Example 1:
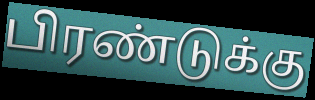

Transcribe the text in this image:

பிரண்டுக்கு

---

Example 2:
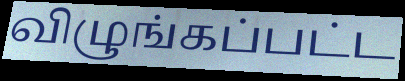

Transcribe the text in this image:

விழுங்கப்பட்ட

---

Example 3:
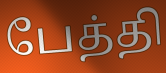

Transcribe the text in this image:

பேத்தி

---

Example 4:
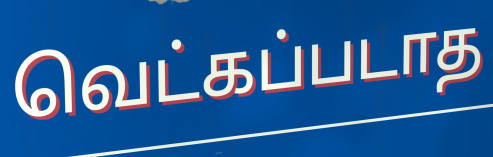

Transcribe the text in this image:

வெட்கப்படாத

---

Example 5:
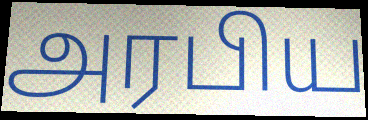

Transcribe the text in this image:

அரபிய